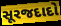
સૂરજદાદો